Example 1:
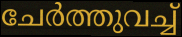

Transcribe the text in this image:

ചേർത്തുവച്ച്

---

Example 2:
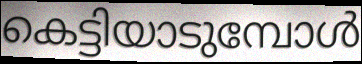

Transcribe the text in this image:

കെട്ടിയാടുമ്പോൾ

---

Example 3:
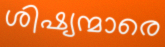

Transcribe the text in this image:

ശിഷ്യന്മാരെ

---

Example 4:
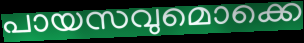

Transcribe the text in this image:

പായസവുമൊക്കെ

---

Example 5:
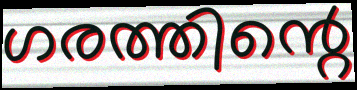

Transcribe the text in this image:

ഗരത്തിന്റെ